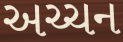
અચ્ચન